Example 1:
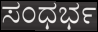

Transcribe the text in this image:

ಸಂಧರ್ಭ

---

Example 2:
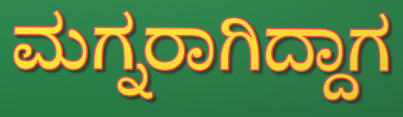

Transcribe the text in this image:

ಮಗ್ನರಾಗಿದ್ದಾಗ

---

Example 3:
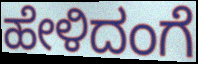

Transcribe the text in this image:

ಹೇಳಿದಂಗೆ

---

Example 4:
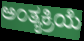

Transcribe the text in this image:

ಅಂತ್ಯಕ್ರಿಯೆ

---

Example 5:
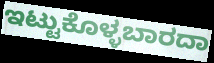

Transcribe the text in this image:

ಇಟ್ಟುಕೊಳ್ಳಬಾರದಾ